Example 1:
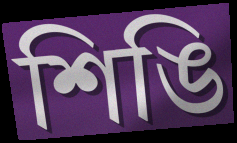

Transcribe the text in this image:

শিঙি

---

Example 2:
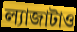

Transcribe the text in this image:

ল্যাজাটাও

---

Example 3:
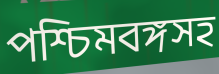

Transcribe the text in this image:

পশ্চিমবঙ্গসহ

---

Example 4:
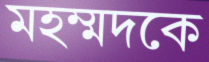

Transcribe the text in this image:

মহম্মদকে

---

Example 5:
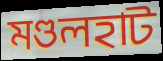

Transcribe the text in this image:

মণ্ডলহাট